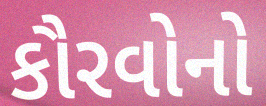
કૌરવોનો